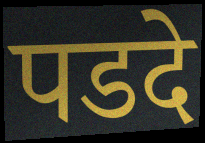
पडदे